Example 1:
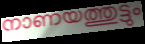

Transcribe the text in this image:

നാണയത്തുട്ടും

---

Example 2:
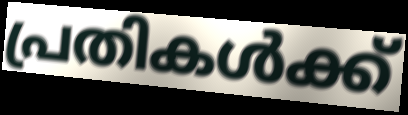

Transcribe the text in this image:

പ്രതികൾക്ക്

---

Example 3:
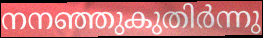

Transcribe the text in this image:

നനഞ്ഞുകുതിർന്നു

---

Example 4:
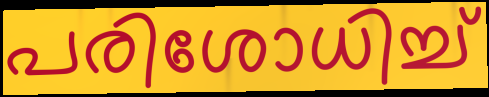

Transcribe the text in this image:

പരിശോധിച്ച്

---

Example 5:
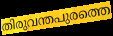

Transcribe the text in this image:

തിരുവന്തപുരത്തെ